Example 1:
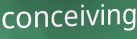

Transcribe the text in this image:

conceiving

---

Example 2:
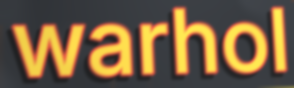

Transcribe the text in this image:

warhol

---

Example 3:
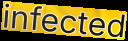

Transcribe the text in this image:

infected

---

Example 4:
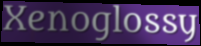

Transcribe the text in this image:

Xenoglossy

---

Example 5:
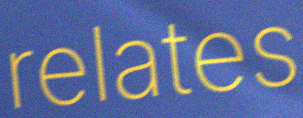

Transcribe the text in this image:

relates